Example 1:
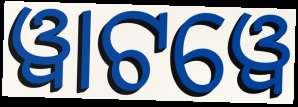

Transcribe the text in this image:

ୱାଟୱେ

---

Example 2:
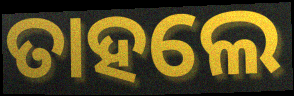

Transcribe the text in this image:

ତାହଲେ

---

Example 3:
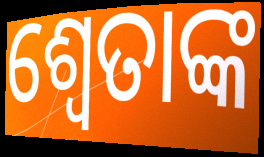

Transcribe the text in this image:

ଶ୍ୱେତାଙ୍କ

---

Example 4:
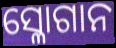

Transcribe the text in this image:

ସ୍ଳୋଗାନ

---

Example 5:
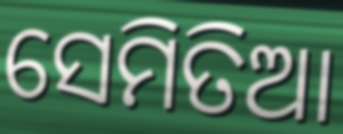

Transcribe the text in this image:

ସେମିତିଆ